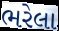
ભરેલા